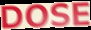
DOSE